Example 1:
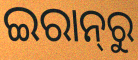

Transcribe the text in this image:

ଇରାନ୍‌ରୁ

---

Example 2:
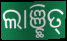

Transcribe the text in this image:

ଲାଞ୍ଛିତ୍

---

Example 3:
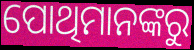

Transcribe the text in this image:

ପୋଥିମାନଙ୍କରୁ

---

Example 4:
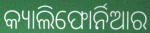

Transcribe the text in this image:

କ୍ୟାଲିଫୋର୍ନିଆର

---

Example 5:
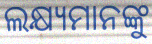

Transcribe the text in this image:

ଲକ୍ଷ୍ୟମାନଙ୍କୁ